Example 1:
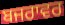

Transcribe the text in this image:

ਬਜਰਾਵਰ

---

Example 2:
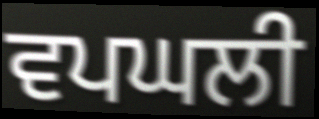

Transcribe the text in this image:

ਵਪਘਲੀ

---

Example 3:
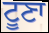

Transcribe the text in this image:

ਟੂਣਾ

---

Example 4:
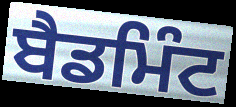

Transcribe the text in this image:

ਬੈਡਮਿੰਟ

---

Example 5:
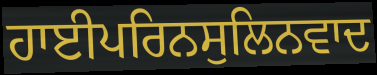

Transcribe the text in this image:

ਹਾਈਪਰਿਨਸੁਲਿਨਵਾਦ